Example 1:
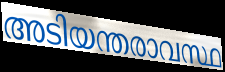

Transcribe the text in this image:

അടിയന്തരാവസ്ഥ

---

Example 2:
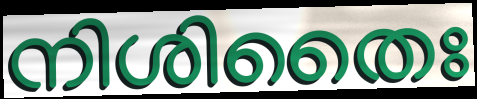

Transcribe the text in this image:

നിശിതൈഃ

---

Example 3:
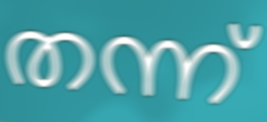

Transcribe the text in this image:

തന്ന്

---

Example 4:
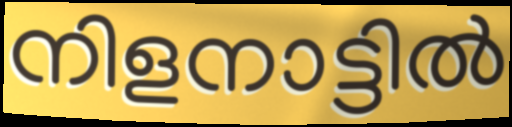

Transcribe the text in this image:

നിളനാട്ടിൽ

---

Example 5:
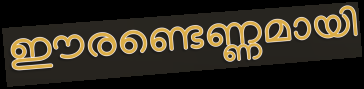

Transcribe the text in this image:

ഈരണ്ടെണ്ണമായി